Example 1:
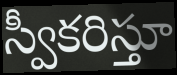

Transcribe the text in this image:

స్వీకరిస్తూ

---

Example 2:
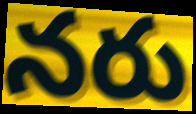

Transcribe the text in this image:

నరు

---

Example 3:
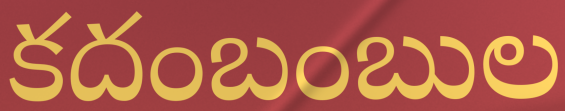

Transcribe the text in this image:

కదంబంబుల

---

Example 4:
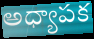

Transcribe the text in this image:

అధ్యాపక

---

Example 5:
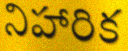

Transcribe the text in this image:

నిహారిక